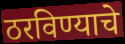
ठरविण्याचे